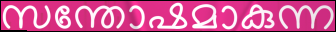
സന്തോഷമാകുന്ന